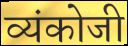
व्यंकोजी